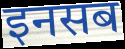
इनसब